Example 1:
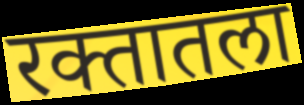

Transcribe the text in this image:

रक्तातला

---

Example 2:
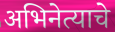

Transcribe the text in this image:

अभिनेत्याचे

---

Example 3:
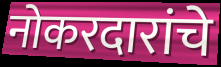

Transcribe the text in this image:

नोकरदारांचे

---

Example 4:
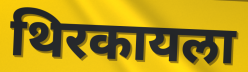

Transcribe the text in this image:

थिरकायला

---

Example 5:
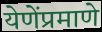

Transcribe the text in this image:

येणेंप्रमाणे